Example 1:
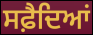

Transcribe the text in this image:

ਸਫ਼ੈਦਿਆਂ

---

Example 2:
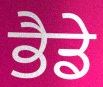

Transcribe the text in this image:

ਭੈਡੇ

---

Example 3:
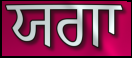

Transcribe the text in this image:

ਯਗਾ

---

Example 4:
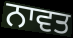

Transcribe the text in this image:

ਨਾਵਤ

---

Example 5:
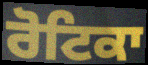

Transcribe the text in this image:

ਰੋਟਿਕਾ